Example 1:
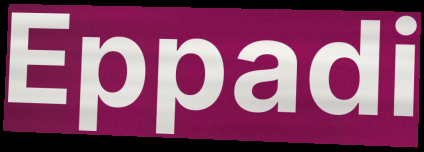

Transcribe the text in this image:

Eppadi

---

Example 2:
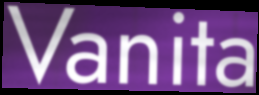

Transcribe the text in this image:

Vanita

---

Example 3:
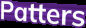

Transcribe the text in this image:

Patters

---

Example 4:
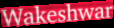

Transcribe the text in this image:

Wakeshwar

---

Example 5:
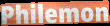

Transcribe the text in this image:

Philemon